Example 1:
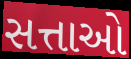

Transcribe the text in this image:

સત્તાઓ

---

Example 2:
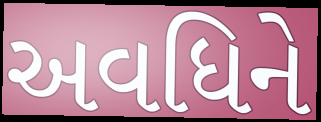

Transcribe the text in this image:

અવધિને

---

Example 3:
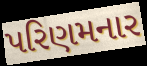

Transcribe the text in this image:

પરિણમનાર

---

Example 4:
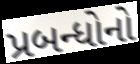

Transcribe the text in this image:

પ્રબન્ધોનો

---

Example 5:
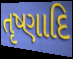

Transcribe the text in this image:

તૃષ્ણાદિ